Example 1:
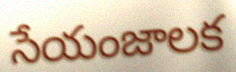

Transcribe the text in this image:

సేయంజాలక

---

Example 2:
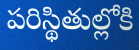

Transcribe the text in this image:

పరిస్థితుల్లోకి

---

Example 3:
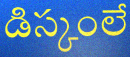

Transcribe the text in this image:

డిస్కంలే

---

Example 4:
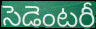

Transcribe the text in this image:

సెడెంటరీ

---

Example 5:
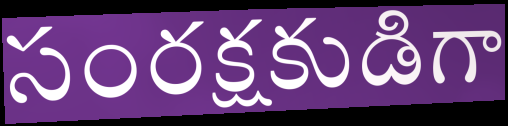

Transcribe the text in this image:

సంరక్షకుడిగా